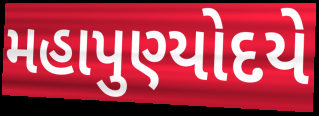
મહાપુણ્યોદયે